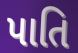
પાતિ